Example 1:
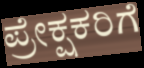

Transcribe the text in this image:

ಪ್ರೇಕ್ಷಕರಿಗೆ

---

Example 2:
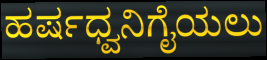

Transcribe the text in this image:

ಹರ್ಷಧ್ವನಿಗೈಯಲು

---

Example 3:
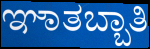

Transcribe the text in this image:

ಞಾತಬ್ಬಾತಿ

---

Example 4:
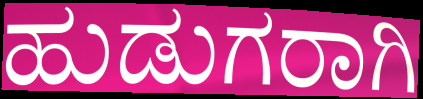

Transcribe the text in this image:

ಹುಡುಗರಾಗಿ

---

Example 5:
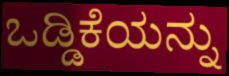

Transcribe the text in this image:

ಒಡ್ಡಿಕೆಯನ್ನು